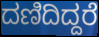
ದಣಿದಿದ್ದರೆ